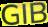
GIB